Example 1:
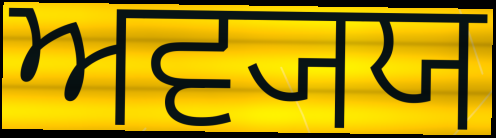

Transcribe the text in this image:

ਅਵ੍ਯਯ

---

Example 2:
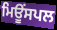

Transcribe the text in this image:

ਮਿਊਂਸਪਲ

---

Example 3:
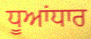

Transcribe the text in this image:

ਧੂਆਂਧਾਰ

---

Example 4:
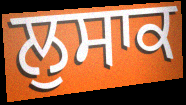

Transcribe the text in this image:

ਲੁਸਾਕ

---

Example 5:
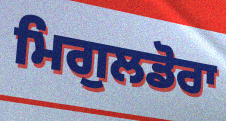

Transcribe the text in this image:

ਮਿਗੁਲਡੋਰਾ